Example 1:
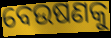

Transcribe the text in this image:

ବେଉଷଣକୁ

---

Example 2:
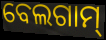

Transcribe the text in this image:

ବେଲଗାମ୍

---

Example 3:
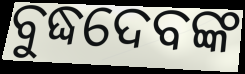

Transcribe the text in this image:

ବୁଦ୍ଧଦେବଙ୍କ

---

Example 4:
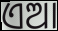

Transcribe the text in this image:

ଏଆ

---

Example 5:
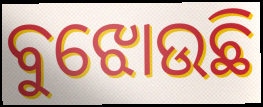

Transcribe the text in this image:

ବୁଝୋଉଛି